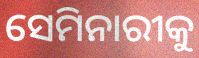
ସେମିନାରୀକୁ